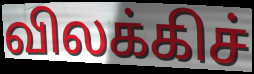
விலக்கிச்